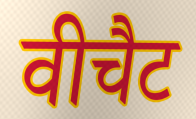
वीचैट